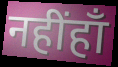
नहींहाँ